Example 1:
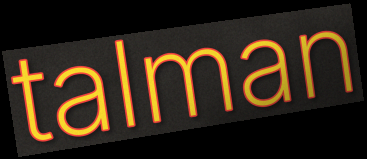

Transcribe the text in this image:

talman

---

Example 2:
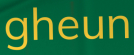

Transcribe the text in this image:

gheun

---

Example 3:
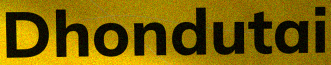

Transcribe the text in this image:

Dhondutai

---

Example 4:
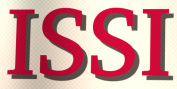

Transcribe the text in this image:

ISSI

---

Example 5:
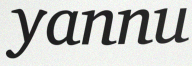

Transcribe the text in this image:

yannu